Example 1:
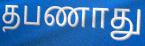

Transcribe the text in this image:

தபணாது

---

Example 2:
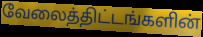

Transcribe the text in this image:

வேலைத்திட்டங்களின்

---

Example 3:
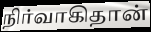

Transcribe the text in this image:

நிர்வாகிதான்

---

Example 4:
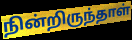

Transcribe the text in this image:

நின்றிருந்தாள்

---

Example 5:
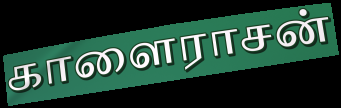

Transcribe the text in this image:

காளைராசன்